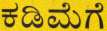
ಕಡಿಮೆಗೆ